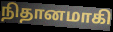
நிதானமாகி